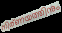
നിര്ണയത്തിനും